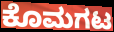
ಕೊಮಗಟ